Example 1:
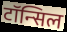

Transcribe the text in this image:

टॉन्सिल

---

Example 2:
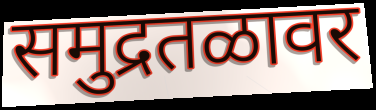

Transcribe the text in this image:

समुद्रतळावर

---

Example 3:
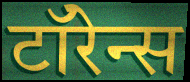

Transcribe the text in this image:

टॉरेन्स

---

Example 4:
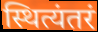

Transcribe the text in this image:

स्थित्यंतरं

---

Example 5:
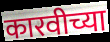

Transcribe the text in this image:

कारवीच्या